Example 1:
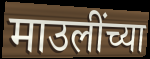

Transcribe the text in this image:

माउलींच्या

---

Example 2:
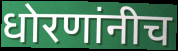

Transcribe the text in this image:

धोरणांनीच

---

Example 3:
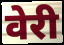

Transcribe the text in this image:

वेरी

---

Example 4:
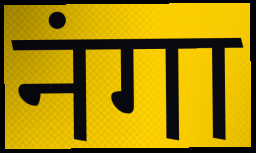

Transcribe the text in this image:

नंगा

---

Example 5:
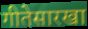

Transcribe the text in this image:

गीतेसारखा